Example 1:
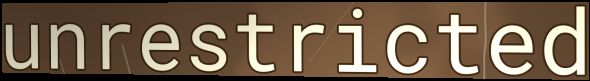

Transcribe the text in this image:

unrestricted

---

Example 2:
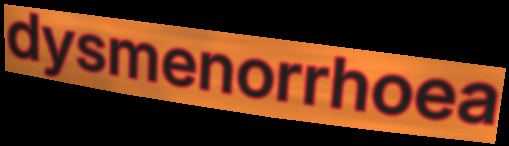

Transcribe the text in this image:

dysmenorrhoea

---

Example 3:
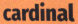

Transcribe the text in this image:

cardinal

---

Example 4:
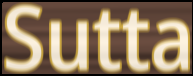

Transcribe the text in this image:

Sutta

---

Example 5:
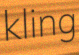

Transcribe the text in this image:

kling